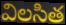
విలసిత